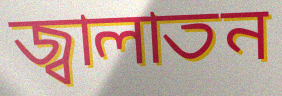
জ্বালাতন